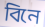
বিনে